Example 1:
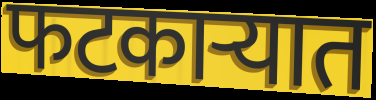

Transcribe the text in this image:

फटकाऱ्यात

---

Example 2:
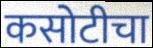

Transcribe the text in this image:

कसोटीचा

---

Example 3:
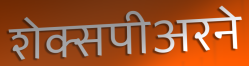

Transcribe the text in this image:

शेक्सपीअरने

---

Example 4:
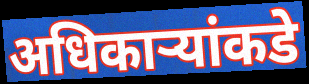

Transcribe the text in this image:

अधिकार्‍यांकडे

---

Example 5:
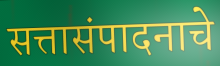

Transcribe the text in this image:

सत्तासंपादनाचे